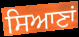
ਸਿਆਣਾਂ